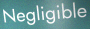
Negligible